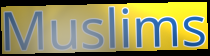
Muslims